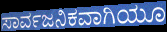
ಸಾರ್ವಜನಿಕವಾಗಿಯೂ